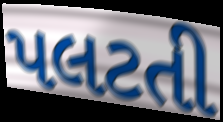
પલટતી